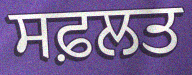
ਸਫ਼ਲਤ